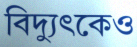
বিদ্যুৎকেও